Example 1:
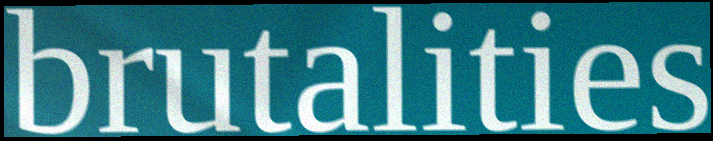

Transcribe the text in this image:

brutalities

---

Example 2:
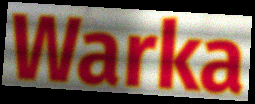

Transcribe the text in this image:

Warka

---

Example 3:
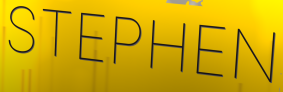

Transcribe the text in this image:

STEPHEN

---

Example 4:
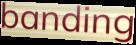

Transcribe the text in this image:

banding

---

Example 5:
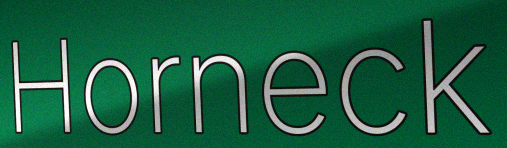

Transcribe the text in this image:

Horneck